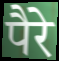
पैरे